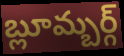
బ్లూమ్బర్గ్